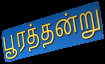
பூரத்தன்று